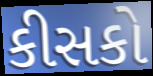
કીસકો